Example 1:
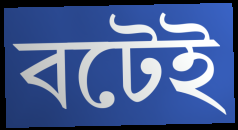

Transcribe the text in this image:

বটেই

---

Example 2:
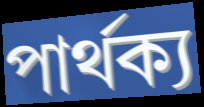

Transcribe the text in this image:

পার্থক্য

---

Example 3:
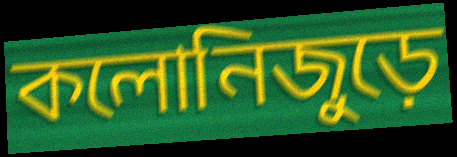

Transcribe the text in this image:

কলোনিজুড়ে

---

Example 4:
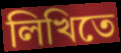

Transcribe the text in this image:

লিখিতে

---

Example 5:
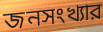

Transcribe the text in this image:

জনসংখ্যার